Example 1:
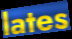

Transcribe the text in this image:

lates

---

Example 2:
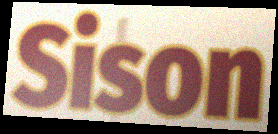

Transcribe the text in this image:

Sison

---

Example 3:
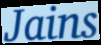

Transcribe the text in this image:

Jains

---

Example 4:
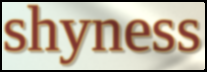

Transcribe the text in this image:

shyness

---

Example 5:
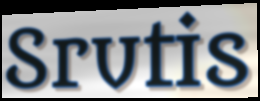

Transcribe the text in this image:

Srutis